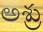
అశ్రు